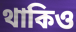
থাকিও